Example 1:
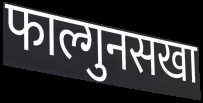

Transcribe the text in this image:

फाल्गुनसखा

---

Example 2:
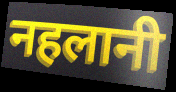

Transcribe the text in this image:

नहलानी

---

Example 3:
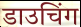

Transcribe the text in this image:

डाउचिंग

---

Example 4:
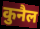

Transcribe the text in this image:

कुनैल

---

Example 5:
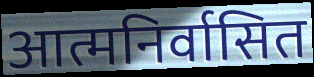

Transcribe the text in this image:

आत्मनिर्वासित